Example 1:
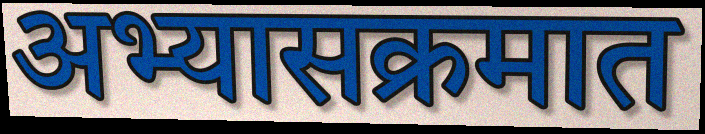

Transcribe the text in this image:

अभ्यासक्रमात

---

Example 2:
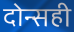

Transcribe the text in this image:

दोन्सही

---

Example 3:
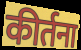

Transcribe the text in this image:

कीर्तना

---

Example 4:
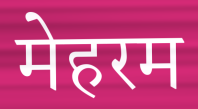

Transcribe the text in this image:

मेहरम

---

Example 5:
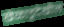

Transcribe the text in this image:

खेळाडूदेखील